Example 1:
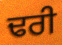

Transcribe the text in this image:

ਢਰੀ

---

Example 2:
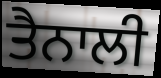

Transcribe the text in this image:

ਤੈਨਾਲੀ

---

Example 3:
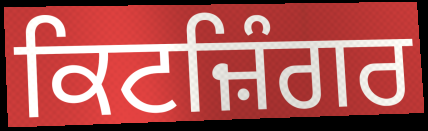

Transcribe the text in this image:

ਕਿਟਜ਼ਿੰਗਰ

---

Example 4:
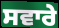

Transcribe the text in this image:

ਸਵਾਰੇ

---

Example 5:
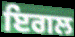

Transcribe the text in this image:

ਇਗਲ